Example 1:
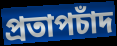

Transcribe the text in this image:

প্রতাপচাঁদ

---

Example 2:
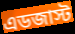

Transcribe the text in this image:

এডজাস্ট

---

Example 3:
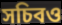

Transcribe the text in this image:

সচিবও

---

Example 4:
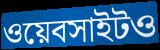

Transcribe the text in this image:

ওয়েবসাইটও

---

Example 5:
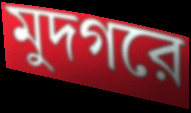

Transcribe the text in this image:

মুদগরে